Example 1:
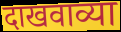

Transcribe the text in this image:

दाखवाव्या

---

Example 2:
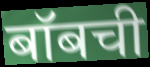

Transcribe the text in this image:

बॉबची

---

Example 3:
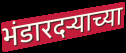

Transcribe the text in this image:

भंडारदर्‍याच्या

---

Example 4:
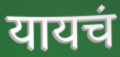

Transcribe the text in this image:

यायचं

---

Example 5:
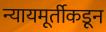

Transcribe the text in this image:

न्यायमूर्तीकडून